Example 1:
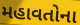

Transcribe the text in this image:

મહાવતોના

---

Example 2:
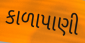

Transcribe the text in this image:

કાળાપાણી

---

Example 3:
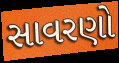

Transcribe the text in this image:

સાવરણો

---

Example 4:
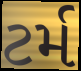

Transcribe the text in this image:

ટર્મ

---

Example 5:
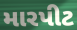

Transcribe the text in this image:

મારપીટ